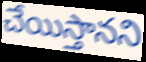
చేయిస్తానని